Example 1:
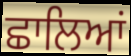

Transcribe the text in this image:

ਛਾਲਿਆਂ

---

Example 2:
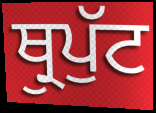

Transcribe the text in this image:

ਥ੍ਰੁਪੁੱਟ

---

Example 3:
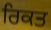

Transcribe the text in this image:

ਰਿਕਤ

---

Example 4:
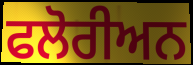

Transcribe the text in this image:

ਫਲੋਰੀਅਨ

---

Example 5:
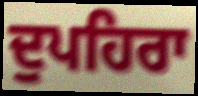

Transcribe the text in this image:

ਦੁਪਹਿਰਾ